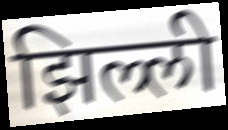
झिल्ली